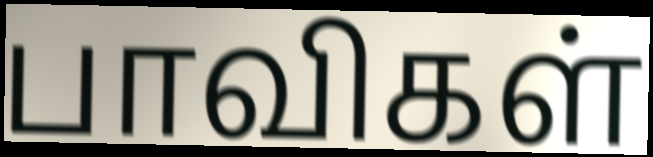
பாவிகள்